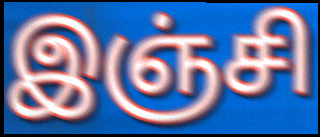
இஞ்சி